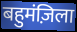
बहुमंज़िला